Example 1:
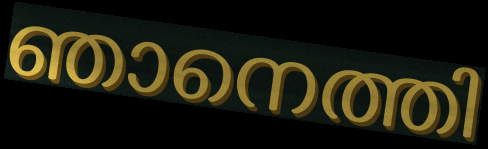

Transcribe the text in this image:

ഞാനെത്തി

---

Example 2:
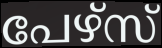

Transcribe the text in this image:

പേഴ്സ്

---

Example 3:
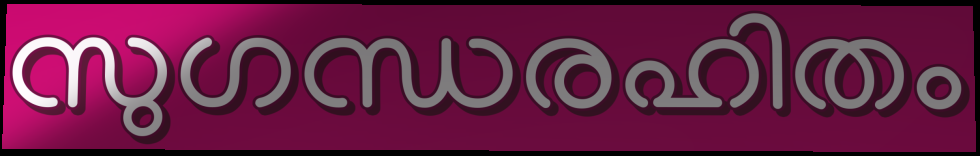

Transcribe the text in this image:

സുഗന്ധരഹിതം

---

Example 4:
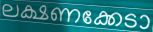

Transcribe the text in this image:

ലക്ഷണക്കേടാ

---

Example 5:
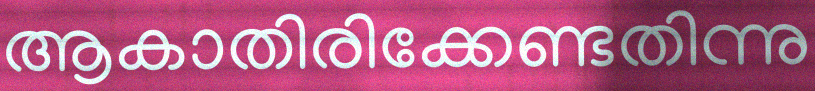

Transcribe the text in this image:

ആകാതിരിക്കേണ്ടതിന്നു